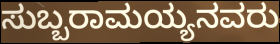
ಸುಬ್ಬರಾಮಯ್ಯನವರು